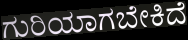
ಗುರಿಯಾಗಬೇಕಿದೆ